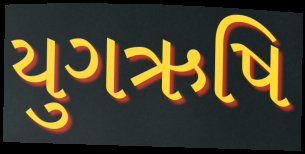
યુગઋષિ